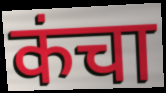
कंचा